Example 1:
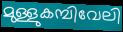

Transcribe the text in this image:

മുള്ളുകമ്പിവേലി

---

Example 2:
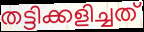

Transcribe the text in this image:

തട്ടിക്കളിച്ചത്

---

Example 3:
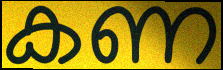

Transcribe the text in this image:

കണ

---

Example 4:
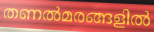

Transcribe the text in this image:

തണൽമരങ്ങളിൽ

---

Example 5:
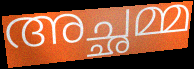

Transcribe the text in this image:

അച്ഛമ്മ